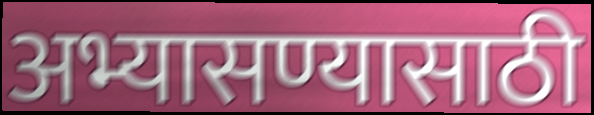
अभ्यासण्यासाठी